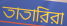
তাতারিরা